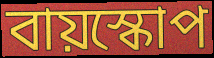
বায়স্কোপ